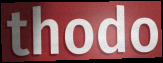
thodo